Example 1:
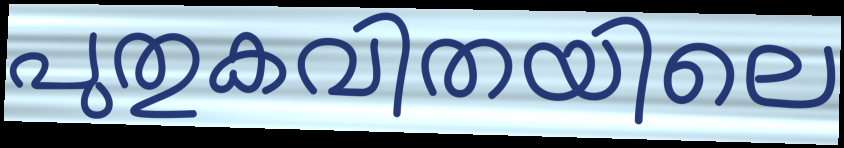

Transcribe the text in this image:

പുതുകവിതയിലെ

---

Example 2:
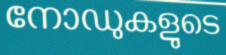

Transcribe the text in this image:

നോഡുകളുടെ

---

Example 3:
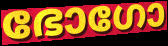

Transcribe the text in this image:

ഭോഗോ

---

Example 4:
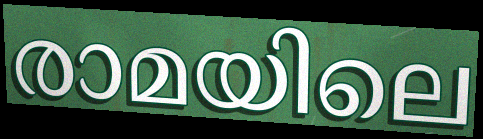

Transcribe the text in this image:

രാമയിലെ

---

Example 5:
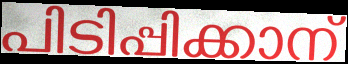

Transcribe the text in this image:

പിടിപ്പിക്കാന്